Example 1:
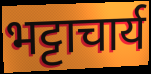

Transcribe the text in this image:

भट्टाचार्य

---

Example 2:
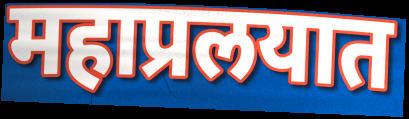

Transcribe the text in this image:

महाप्रलयात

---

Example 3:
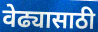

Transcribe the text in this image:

वेढ्यासाठी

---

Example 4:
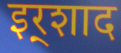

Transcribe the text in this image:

इर्शाद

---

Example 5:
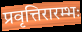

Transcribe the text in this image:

प्रवृत्तिरारम्भः